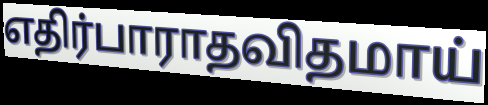
எதிர்பாராதவிதமாய்